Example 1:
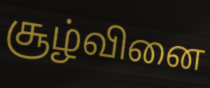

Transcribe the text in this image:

சூழ்வினை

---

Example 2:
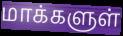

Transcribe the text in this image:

மாக்களுள்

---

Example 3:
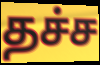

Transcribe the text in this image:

தச்ச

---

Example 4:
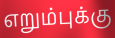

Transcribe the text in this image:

எறும்புக்கு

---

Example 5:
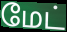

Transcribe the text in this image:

மேட்